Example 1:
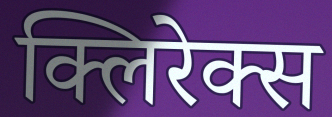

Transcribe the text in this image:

क्लिरेक्स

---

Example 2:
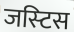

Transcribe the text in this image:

जस्‍टिस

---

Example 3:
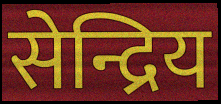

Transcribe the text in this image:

सेन्द्रिय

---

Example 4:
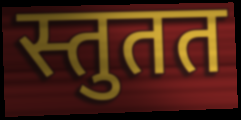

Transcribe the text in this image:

स्तुतत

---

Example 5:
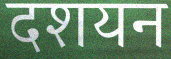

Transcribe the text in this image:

दशयन